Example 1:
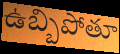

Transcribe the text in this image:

ఉబ్బిపోతూ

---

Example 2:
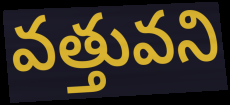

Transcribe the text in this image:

వత్తువని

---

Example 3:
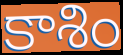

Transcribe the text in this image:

కాశిం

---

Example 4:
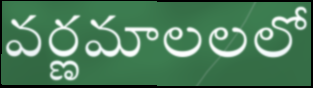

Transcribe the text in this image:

వర్ణమాలలలో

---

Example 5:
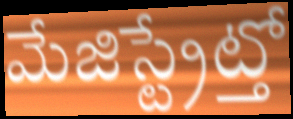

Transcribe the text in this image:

మేజిస్ట్రేట్తో